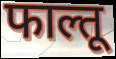
फाल्तू